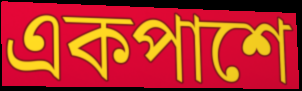
একপাশে